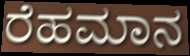
ರೆಹಮಾನ